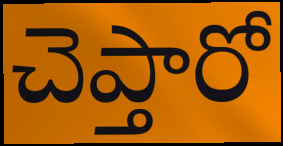
చెప్తారో